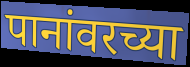
पानांवरच्या